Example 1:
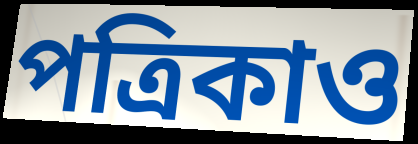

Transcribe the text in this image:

পত্রিকাও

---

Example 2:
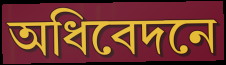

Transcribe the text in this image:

অধিবেদনে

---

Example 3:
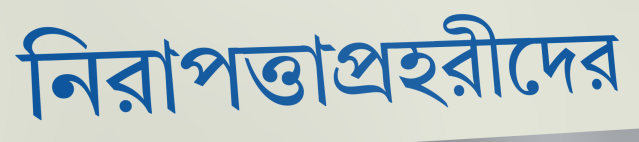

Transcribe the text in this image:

নিরাপত্তাপ্রহরীদের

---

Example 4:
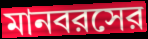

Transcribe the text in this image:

মানবরসের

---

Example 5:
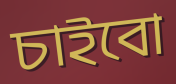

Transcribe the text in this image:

চাইবো